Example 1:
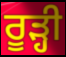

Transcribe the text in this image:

ਰੂੜ੍ਹੀ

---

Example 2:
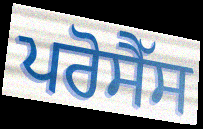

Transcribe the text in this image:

ਪਰੋਸੈੱਸ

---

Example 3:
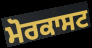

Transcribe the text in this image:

ਮੋਰਕਾਸਟ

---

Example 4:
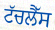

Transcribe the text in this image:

ਟੱਚਲੈੱਸ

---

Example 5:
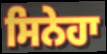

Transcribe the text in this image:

ਸਿਨੇਹਾ